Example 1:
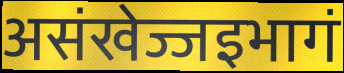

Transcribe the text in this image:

असंखेज्जइभागं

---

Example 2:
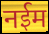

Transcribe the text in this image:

नईम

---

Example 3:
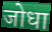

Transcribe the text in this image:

जोधा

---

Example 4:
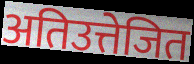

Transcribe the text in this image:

अतिउत्तेजित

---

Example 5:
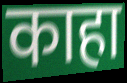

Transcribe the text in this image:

काहा